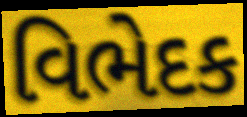
વિભેદક